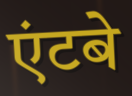
एंटबे